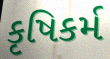
કૃષિકર્મ